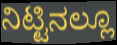
ನಿಟ್ಟಿನಲ್ಲೂ